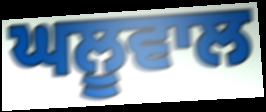
ਘਲੂਵਾਲ